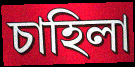
চাহিলা